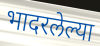
भादरलेल्या